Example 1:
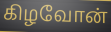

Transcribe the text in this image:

கிழவோன்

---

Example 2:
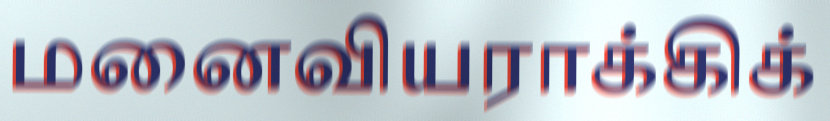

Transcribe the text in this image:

மனைவியராக்கிக்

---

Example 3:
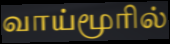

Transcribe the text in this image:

வாய்மூரில்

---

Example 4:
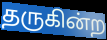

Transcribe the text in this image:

தருகின்ற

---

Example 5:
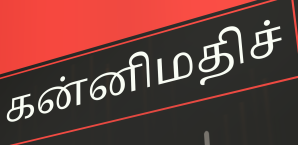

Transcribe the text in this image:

கன்னிமதிச்